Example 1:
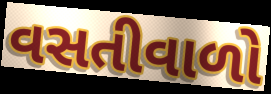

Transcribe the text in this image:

વસતીવાળો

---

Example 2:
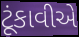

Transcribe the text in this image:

ટૂંકાવીએ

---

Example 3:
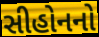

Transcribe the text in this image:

સીહોનનો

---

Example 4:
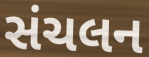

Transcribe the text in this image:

સંચલન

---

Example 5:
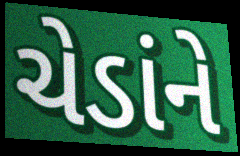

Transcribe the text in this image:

ચેડાંને